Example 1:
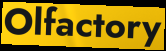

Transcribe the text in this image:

Olfactory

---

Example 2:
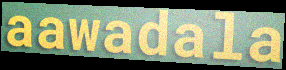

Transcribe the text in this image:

aawadala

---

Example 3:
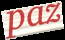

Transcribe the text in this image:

paz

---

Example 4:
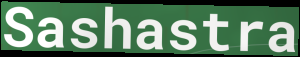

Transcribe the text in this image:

Sashastra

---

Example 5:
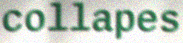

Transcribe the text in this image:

collapes